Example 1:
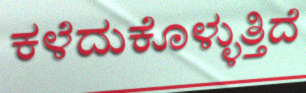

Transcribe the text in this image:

ಕಳೆದುಕೊಳ್ಳುತ್ತಿದೆ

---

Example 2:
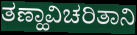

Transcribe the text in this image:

ತಣ್ಹಾವಿಚರಿತಾನಿ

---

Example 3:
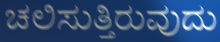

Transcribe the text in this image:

ಚಲಿಸುತ್ತಿರುವುದು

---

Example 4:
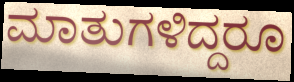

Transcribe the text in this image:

ಮಾತುಗಳಿದ್ದರೂ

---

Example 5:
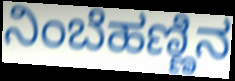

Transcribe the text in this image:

ನಿಂಬೆಹಣ್ಣಿನ